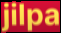
jilpa